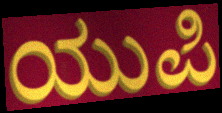
ಯುಪಿ